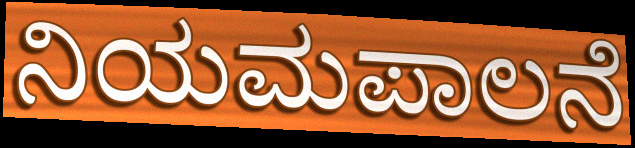
ನಿಯಮಪಾಲನೆ